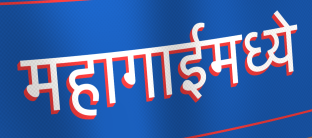
महागाईमध्ये